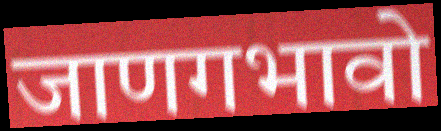
जाणगभावो